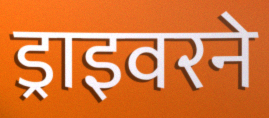
ड्राइवरने